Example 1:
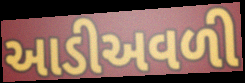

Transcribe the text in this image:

આડીઅવળી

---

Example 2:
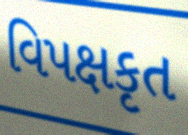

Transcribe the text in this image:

વિપક્ષકૃત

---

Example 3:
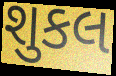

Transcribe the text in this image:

શુકલ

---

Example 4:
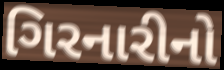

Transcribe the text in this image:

ગિરનારીનો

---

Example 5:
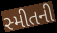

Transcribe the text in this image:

સ્મીતની